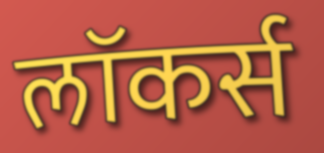
लॉकर्स